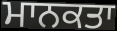
ਮਾਨਕਤਾ